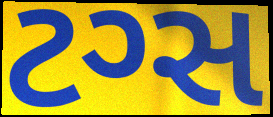
ટગ્સ